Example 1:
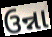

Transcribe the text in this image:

ઉન્ના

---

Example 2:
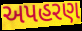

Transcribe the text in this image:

અપહરણ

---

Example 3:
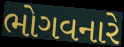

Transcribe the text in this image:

ભોગવનારે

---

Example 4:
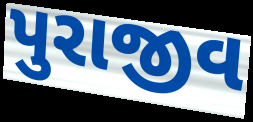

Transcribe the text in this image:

પુરાજીવ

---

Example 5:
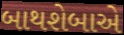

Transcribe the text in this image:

બાથશેબાએ